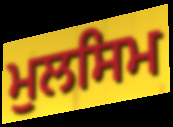
ਮੁਲਸਿਮ